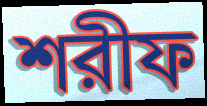
শরীফ